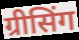
ग्रीसिंग